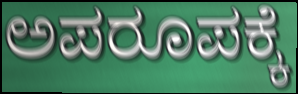
ಅಪರೂಪಕ್ಕೆ